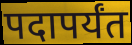
पदापर्यंत